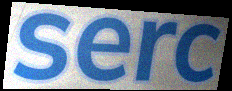
serc